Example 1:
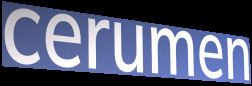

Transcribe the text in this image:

cerumen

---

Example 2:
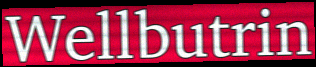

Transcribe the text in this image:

Wellbutrin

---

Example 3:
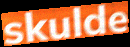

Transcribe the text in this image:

skulde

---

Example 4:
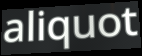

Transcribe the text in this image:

aliquot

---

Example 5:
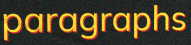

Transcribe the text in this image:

paragraphs